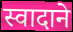
स्वादाने